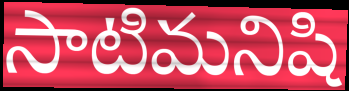
సాటిమనిషి